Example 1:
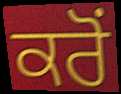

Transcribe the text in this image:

ਕਰੋਂ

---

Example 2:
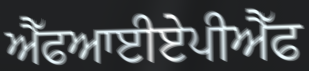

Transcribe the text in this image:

ਐੱਫਆਈਏਪੀਐੱਫ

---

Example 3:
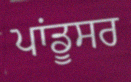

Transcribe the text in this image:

ਪਾਂਡੂਸਰ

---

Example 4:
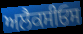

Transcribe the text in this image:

ਅਲੈਕਸੀਓਸ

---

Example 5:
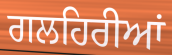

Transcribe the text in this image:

ਗਲਹਿਰੀਆਂ